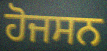
ਹੋਜਸਨ